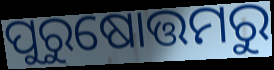
ପୁରୁଷୋତ୍ତମରୁ